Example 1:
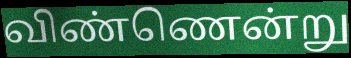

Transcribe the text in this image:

விண்ணென்று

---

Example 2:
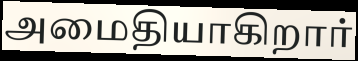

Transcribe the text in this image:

அமைதியாகிறார்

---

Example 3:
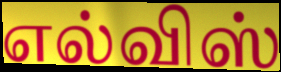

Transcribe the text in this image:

எல்விஸ்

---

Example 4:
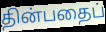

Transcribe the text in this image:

தின்பதைப்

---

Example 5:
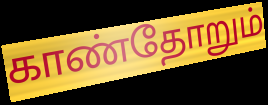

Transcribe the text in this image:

காண்தோறும்